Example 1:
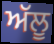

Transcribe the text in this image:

ਅੱਲੂ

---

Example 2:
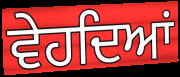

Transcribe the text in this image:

ਵੇਹਦਿਆਂ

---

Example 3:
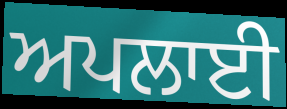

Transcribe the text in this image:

ਅਪਲਾਈ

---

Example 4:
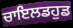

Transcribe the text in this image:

ਚਾਇਲਡਹੁਡ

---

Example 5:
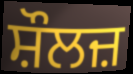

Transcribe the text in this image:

ਸ਼ੌਲਜ਼